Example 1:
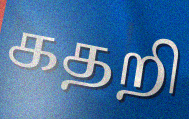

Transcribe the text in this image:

கதறி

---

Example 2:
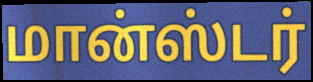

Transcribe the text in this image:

மான்ஸ்டர்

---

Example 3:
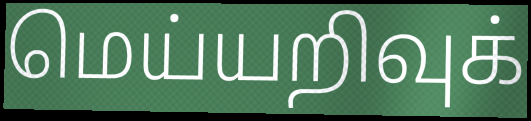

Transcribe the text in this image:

மெய்யறிவுக்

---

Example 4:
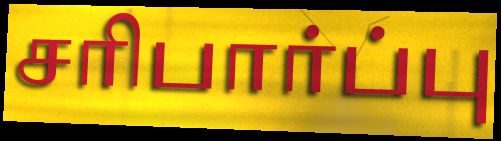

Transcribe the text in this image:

சரிபார்ப்பு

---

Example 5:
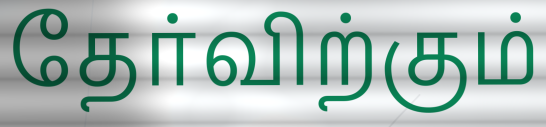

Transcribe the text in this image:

தேர்விற்கும்